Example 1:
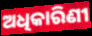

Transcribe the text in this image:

ଅଧିକାରିଣୀ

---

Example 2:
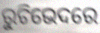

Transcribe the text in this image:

ରୁଚିଭେଦରେ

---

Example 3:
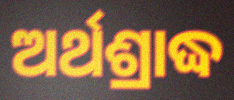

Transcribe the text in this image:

ଅର୍ଥଶ୍ରାଦ୍ଧ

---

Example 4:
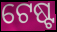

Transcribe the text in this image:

ଟେଷ୍ଟ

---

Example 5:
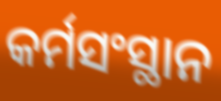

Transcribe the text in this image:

କର୍ମସଂସ୍ଥାନ